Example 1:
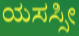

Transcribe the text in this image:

ಯಸಸ್ಸೀ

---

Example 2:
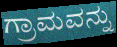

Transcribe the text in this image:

ಗ್ರಾಮವನ್ನು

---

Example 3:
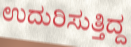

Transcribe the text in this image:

ಉದುರಿಸುತ್ತಿದ್ದ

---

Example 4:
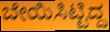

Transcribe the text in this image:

ಬೇಯಿಸಿಟ್ಟಿದ್ದ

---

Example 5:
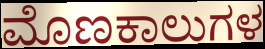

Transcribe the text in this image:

ಮೊಣಕಾಲುಗಳ